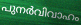
പുനർവിവാഹം